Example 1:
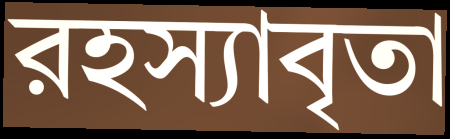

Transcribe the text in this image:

রহস্যাবৃতা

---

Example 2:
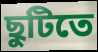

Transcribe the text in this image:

ছুটিতে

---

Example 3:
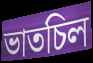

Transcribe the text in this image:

ভাতচিল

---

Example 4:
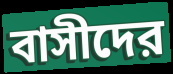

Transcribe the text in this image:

বাসীদের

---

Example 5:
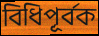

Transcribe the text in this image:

বিধিপূর্বক